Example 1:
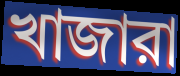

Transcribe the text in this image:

খাজারা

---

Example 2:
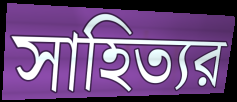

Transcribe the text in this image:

সাহিত্যর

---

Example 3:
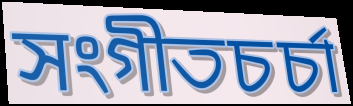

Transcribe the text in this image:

সংগীতচর্চা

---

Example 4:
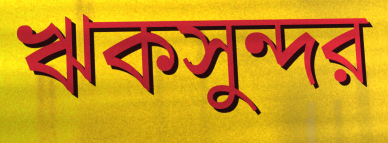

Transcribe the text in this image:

ঋকসুন্দর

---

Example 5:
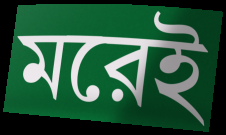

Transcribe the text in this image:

মরেই